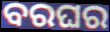
ବରଘର